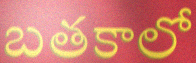
బతకాలో